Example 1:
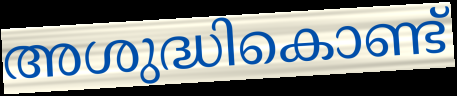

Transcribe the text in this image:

അശുദ്ധികൊണ്ട്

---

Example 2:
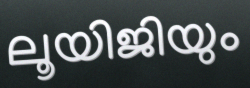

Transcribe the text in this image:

ലൂയിജിയും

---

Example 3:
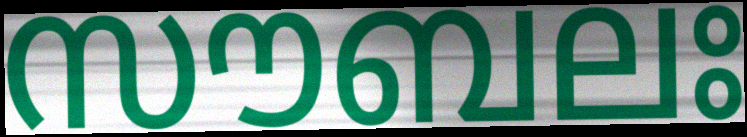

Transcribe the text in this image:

സൗബലഃ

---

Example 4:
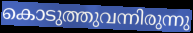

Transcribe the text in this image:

കൊടുത്തുവന്നിരുന്നു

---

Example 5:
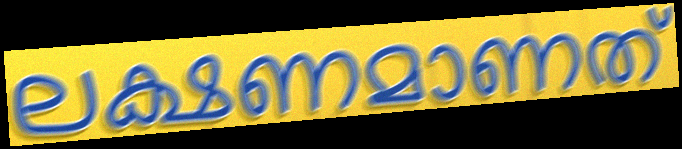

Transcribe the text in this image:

ലക്ഷണമാണത്